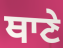
ਥਾਣੇ